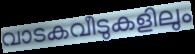
വാടകവീടുകളിലും